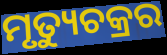
ମୃତ୍ୟୁଚକ୍ରର